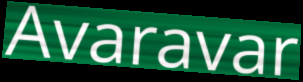
Avaravar